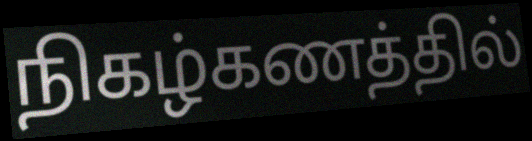
நிகழ்கணத்தில்